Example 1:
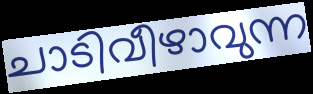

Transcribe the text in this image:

ചാടിവീഴാവുന്ന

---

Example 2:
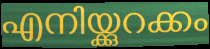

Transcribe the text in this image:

എനിയ്ക്കുറക്കം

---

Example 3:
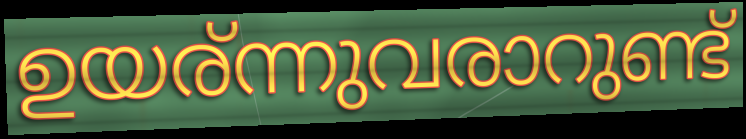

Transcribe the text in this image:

ഉയര്ന്നുവരാറുണ്ട്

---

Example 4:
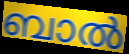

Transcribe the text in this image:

ബാൽ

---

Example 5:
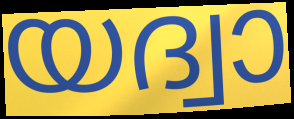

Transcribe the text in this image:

യദ്വാ